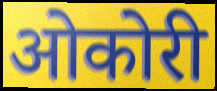
ओकोरी